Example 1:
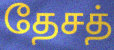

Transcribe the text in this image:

தேசத்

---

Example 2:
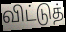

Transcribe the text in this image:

விட்டுத்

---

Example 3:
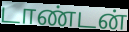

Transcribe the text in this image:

டாண்டன்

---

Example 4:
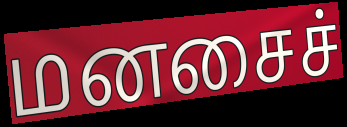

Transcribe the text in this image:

மனசைச்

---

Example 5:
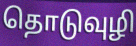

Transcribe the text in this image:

தொடுவுழி